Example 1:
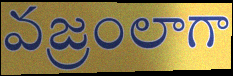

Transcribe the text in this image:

వజ్రంలాగా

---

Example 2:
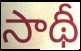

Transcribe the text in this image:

సాథీ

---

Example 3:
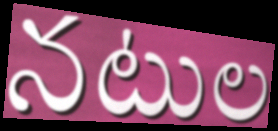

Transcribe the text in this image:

నటుల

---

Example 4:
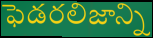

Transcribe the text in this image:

ఫెడరలిజాన్ని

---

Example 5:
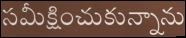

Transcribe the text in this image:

సమీక్షించుకున్నాను